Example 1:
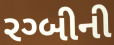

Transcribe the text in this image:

રગ્બીની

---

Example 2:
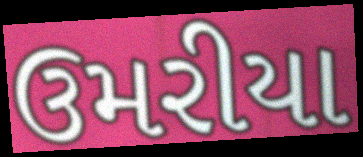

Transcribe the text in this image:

ઉમરીયા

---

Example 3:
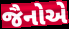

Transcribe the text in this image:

જૈનોએ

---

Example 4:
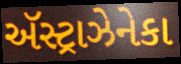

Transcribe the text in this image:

ઍસ્ટ્રાઝેનેકા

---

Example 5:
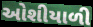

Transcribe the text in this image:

ઓશીયાળી